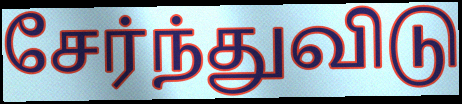
சேர்ந்துவிடு